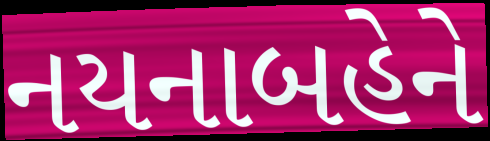
નયનાબહેને